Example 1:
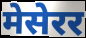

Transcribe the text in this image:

मेसेरर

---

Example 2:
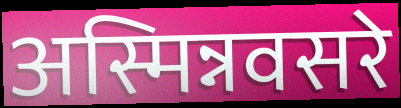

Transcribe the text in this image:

अस्मिन्नवसरे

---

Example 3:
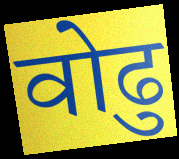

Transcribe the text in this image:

वोढु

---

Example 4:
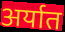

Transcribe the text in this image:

अर्यात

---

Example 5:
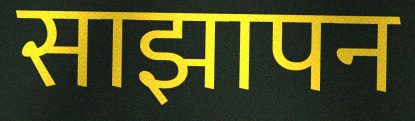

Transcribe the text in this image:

साझापन